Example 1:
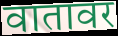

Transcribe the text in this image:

वातावर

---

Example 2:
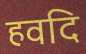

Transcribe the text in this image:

हवदि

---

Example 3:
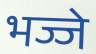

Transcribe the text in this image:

भज्जे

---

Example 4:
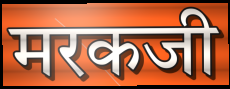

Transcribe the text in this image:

मरकजी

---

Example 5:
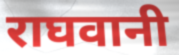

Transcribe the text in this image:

राघवानी